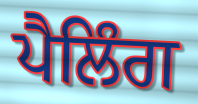
ਪੈਲਿੰਗ